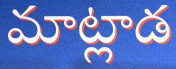
మాట్లాడ